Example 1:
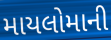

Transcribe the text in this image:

માયલોમાની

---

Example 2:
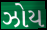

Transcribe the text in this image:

ઝોય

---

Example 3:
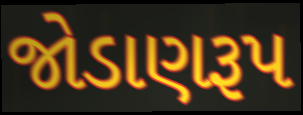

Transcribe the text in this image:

જોડાણરૂપ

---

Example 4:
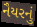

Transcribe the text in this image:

નૈયરનું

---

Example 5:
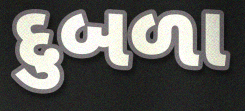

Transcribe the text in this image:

દુબળા